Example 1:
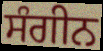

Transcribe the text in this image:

ਸੰਗੀਨ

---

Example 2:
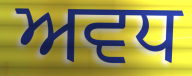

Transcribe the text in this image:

ਅਵਧ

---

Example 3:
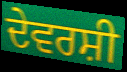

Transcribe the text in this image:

ਦੇਵਰਸ਼ੀ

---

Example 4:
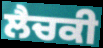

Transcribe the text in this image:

ਲੈਚਕੀ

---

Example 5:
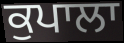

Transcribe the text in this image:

ਕੁਪਾਲਾ